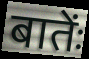
बातेंः